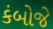
કંબોજે